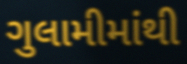
ગુલામીમાંથી